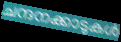
ചന്ദനക്കാടുകൾ